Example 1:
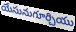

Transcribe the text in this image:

యేసునుగూర్చియు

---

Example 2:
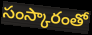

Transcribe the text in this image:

సంస్కారంతో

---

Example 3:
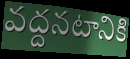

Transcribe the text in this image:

వద్దనటానికి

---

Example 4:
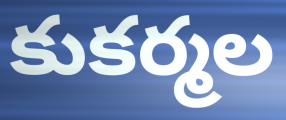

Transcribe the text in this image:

కుకర్మల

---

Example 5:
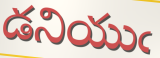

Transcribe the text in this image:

డనియుఁ